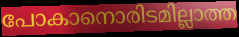
പോകാനൊരിടമില്ലാത്ത